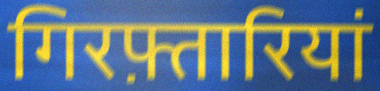
गिरफ़्तारियां